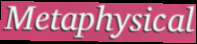
Metaphysical